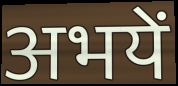
अभयें